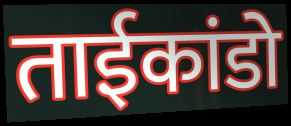
ताईकांडो